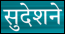
सुदेशने